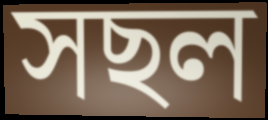
সছল